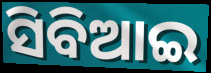
ସିବିଆଇ